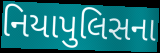
નિયાપુલિસના